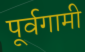
पूर्वगामी